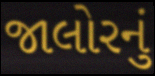
જાલોરનું